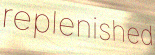
replenished